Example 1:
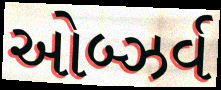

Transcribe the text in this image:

ઓબ્ઝર્વ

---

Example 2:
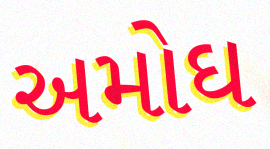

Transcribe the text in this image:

અમોઘ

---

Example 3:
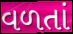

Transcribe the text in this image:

વળતાં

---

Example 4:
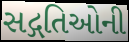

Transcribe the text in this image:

સદ્ગતિઓની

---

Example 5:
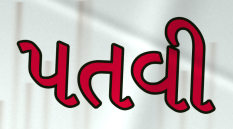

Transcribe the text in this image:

પતવી